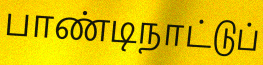
பாண்டிநாட்டுப்